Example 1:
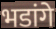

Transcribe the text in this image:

भडांगे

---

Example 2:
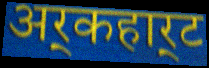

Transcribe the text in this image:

अर्कहार्ट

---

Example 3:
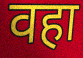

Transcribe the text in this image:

वहा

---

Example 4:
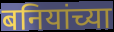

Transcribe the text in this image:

बनियांच्या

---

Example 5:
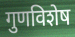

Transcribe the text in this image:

गुणविशेष